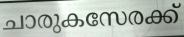
ചാരുകസേരക്ക്